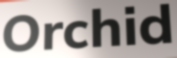
Orchid